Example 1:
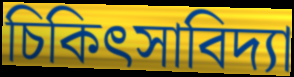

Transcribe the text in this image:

চিকিৎসাবিদ্যা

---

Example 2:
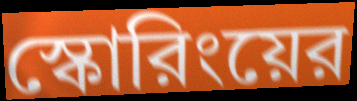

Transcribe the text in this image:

স্কোরিংয়ের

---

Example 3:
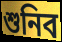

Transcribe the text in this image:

শুনিব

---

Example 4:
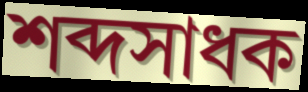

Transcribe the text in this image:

শব্দসাধক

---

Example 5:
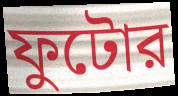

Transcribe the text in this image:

ফুটোর